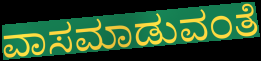
ವಾಸಮಾಡುವಂತೆ